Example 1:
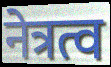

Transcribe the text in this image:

नेत्रत्व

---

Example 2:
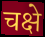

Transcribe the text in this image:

चक्षे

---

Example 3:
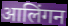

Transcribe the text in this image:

आलिंगन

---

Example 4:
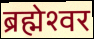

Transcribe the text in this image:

ब्रह्मेश्वर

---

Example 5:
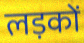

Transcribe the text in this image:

लड़कों